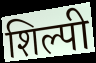
शिल्पी